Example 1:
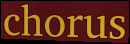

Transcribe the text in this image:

chorus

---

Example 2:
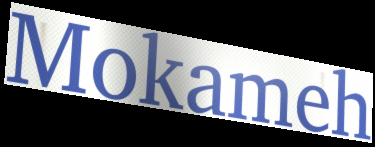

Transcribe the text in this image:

Mokameh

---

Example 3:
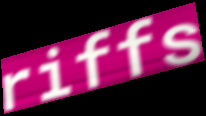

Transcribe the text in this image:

riffs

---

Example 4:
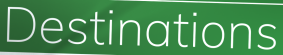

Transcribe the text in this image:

Destinations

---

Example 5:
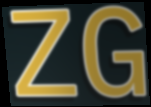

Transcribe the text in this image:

ZG